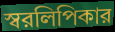
স্বরলিপিকার